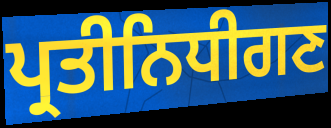
ਪ੍ਰਤੀਨਿਧੀਗਣ